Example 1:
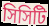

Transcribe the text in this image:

সিসিটি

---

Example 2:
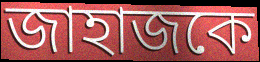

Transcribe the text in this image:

জাহাজকে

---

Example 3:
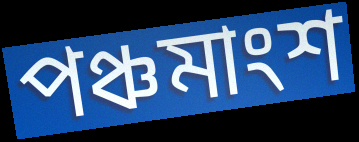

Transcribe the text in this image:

পঞ্চমাংশ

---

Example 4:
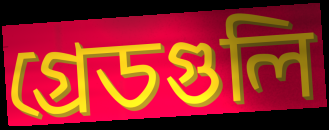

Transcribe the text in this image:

গ্রেডগুলি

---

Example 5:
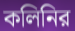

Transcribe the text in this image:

কলিনির